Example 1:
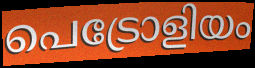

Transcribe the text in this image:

പെട്രോളിയം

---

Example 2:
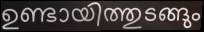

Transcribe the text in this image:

ഉണ്ടായിത്തുടങ്ങും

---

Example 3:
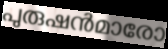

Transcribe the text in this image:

പുരുഷൻമാരോ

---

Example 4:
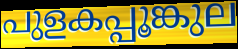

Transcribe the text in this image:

പുളകപ്പൂങ്കുല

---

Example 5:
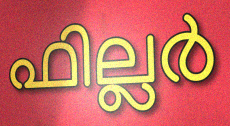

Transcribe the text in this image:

ഫില്ലർ